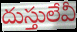
దుస్తులేవీ